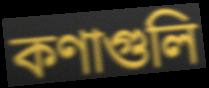
কণাগুলি